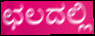
ಛಲದಲ್ಲಿ